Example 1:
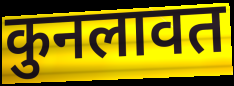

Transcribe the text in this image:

कुनलावत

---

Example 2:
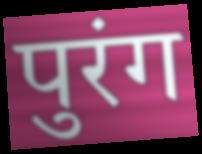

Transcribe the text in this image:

पुरंग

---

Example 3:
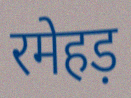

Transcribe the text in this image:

रमेहड़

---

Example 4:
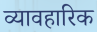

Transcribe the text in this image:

व्यावहारिक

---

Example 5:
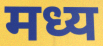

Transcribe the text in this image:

मध्य